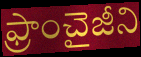
ఫ్రాంచైజీని